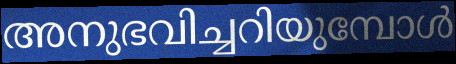
അനുഭവിച്ചറിയുമ്പോൾ